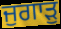
ਜੁਗਾੜੁ